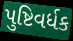
પુષ્ટિવર્ધક